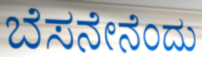
ಬೆಸನೇನೆಂದು